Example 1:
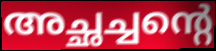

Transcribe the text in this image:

അച്ഛച്ചന്റെ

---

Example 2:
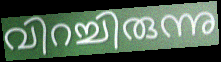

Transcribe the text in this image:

വിറച്ചിരുന്നു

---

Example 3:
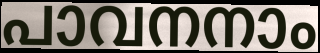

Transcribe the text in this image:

പാവനനാം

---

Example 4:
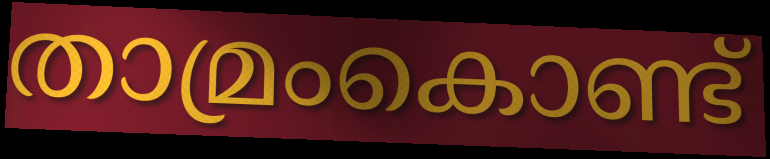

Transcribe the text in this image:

താമ്രംകൊണ്ട്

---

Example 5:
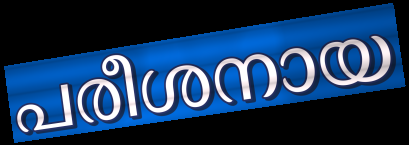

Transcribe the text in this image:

പരീശനായ